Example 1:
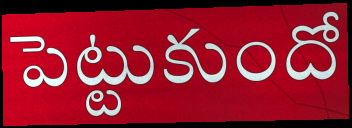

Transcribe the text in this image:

పెట్టుకుందో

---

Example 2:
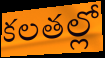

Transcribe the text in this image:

కలతల్లో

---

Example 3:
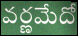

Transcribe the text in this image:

వర్ణమేదో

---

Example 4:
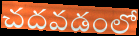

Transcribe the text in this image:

చదవడంలో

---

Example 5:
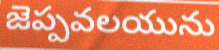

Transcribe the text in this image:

జెప్పవలయును